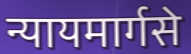
न्यायमार्गसे